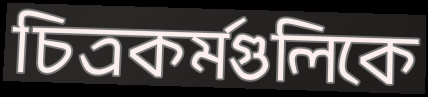
চিত্রকর্মগুলিকে